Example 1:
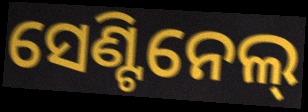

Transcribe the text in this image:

ସେଣ୍ଟିନେଲ୍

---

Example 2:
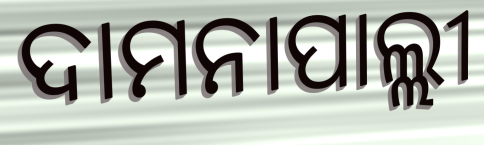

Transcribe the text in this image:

ଦାମନାପାଲ୍ଲୀ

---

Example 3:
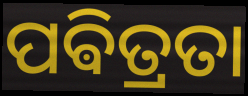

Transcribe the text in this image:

ପଵିତ୍ରତା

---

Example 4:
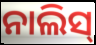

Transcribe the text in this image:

ନାଲିସ୍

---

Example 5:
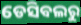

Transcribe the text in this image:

ଡେସିବଲରୁ